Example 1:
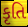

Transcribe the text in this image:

કૃતિ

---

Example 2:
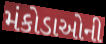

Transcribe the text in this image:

મંકોડાઓની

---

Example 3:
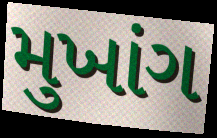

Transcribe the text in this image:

મુખાંગ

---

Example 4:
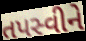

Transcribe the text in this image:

તપસ્વીને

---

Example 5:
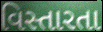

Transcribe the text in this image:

વિસ્તારતા